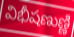
విభీషణుణ్ణి